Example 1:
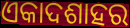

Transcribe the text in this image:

ଏକାଦଶାହର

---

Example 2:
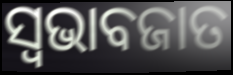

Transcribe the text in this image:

ସ୍ୱଭାବଜାତ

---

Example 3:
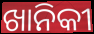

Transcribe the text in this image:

ଖାନିକୀ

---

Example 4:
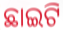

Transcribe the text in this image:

ଛାଇଟି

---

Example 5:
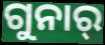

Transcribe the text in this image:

ଗୁନାର୍